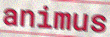
animus